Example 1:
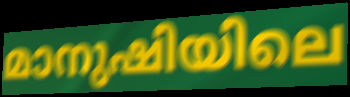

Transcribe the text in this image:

മാനുഷിയിലെ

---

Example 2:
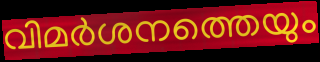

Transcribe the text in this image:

വിമർശനത്തെയും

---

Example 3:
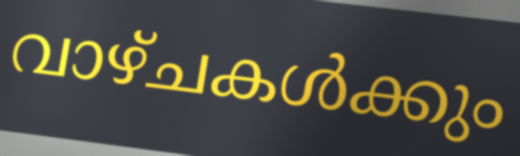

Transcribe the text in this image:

വാഴ്ചകൾക്കും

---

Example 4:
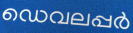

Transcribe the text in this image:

ഡെവലപ്പർ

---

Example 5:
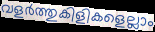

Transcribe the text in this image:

വളർത്തുകിളികളെല്ലാം